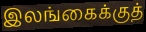
இலங்கைக்குத்